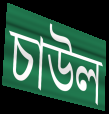
চাউল